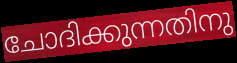
ചോദിക്കുന്നതിനു